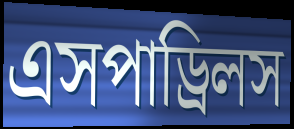
এসপাড্রিলস